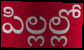
పిల్లల్లో